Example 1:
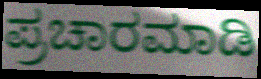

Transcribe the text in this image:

ಪ್ರಚಾರಮಾಡಿ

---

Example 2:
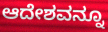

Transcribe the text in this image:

ಆದೇಶವನ್ನೂ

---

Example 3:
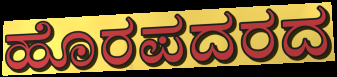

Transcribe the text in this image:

ಹೊರಪದರದ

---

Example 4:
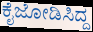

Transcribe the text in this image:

ಕೈಜೋಡಿಸಿದ್ದ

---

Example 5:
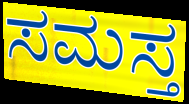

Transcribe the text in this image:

ಸಮಸ್ತ